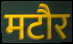
मटौर